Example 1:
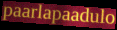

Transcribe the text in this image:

paarlapaadulo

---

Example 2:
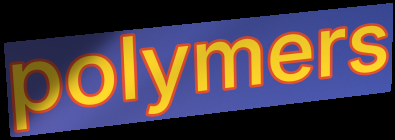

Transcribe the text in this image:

polymers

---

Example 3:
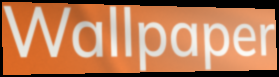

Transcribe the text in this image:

Wallpaper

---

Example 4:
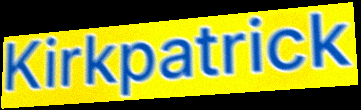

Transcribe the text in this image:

Kirkpatrick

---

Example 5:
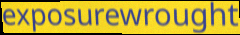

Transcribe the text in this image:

exposurewrought